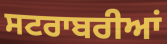
ਸਟਰਾਬਰੀਆਂ